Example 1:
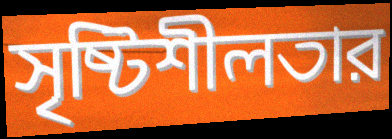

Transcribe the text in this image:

সৃষ্টিশীলতার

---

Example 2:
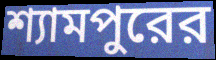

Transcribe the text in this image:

শ্যামপুরের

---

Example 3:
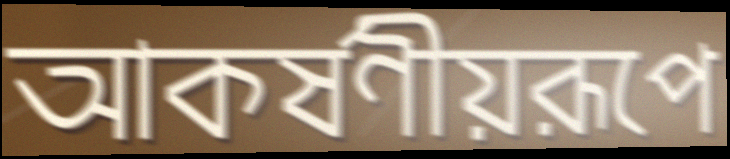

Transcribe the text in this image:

আকর্ষণীয়রূপে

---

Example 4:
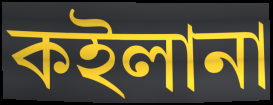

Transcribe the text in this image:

কইলানা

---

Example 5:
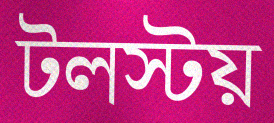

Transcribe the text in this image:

টলস্টয়